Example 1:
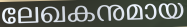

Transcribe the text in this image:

ലേഖകനുമായ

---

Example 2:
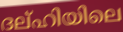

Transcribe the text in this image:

ദല്ഹിയിലെ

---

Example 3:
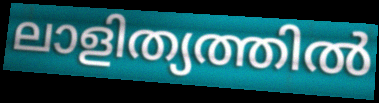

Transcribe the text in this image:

ലാളിത്യത്തിൽ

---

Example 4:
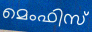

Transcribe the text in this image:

മെംഫിസ്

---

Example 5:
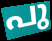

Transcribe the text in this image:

പു